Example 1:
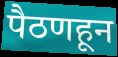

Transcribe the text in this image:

पैठणहून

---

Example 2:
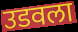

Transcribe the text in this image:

उडवला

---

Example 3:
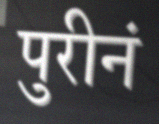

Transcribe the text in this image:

पुरीनं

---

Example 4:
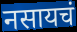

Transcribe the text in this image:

नसायचं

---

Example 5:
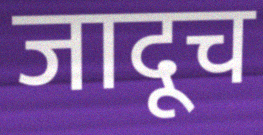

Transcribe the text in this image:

जादूच